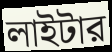
লাইটার